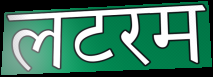
लटरम